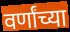
वर्णांच्या